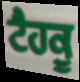
ਟੈਹਕੂ